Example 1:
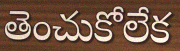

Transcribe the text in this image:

తెంచుకోలేక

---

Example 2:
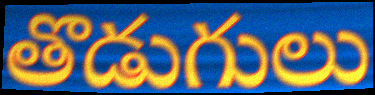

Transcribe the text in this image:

తొడుగులు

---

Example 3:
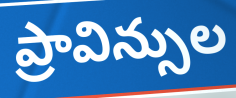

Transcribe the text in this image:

ప్రావిన్సుల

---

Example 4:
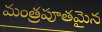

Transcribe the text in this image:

మంత్రపూతమైన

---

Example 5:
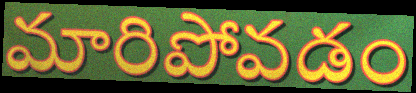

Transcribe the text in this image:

మారిపోవడం